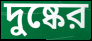
দুষ্কের